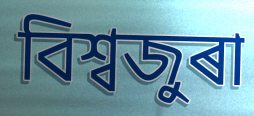
বিশ্বজুৰা